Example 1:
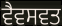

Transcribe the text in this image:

ਵੈਵਸਵਤ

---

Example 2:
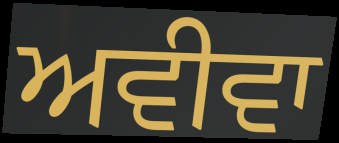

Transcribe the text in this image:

ਅਵੀਵਾ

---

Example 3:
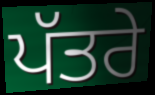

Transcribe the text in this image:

ਪੱਤਰੇ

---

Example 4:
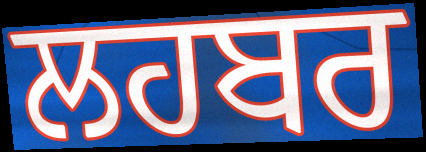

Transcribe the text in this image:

ਲਹਬਰ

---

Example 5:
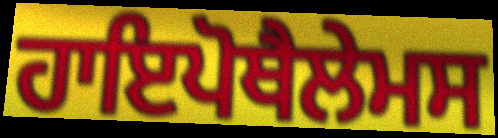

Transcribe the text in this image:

ਹਾਇਪੋਥੈਲੇਮਸ